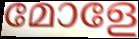
മോളേ